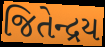
જિતેન્દ્રય